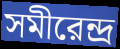
সমীরেন্দ্র